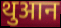
थुआन